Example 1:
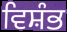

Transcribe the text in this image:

ਵਿਸ਼ੰਭ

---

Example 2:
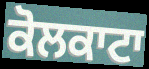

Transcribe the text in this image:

ਕੋਲਕਾਟਾ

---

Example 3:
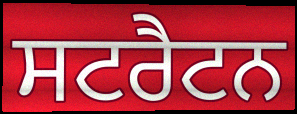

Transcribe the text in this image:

ਸਟਰੈਟਨ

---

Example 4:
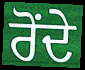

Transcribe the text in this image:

ਰੋਂਦੇ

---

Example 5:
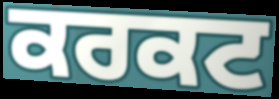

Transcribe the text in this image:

ਕਰਕਟ